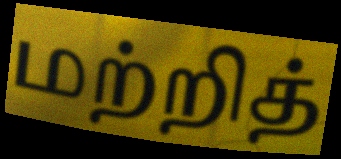
மற்றித்